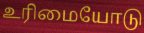
உரிமையோடு